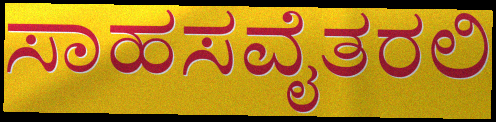
ಸಾಹಸವೈತರಲಿ